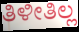
ತಿಳೀತಿಲ್ಲ